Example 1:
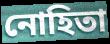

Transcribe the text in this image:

নোহিতা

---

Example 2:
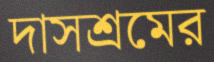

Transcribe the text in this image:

দাসশ্রমের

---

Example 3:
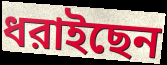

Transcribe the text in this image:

ধরাইছেন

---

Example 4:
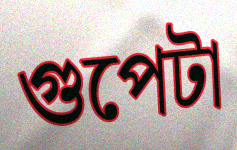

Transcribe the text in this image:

গুপেটা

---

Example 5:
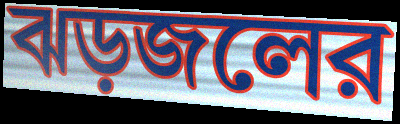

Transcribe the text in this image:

ঝড়জলের